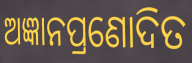
ଅଜ୍ଞାନପ୍ରଣୋଦିତ